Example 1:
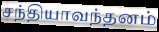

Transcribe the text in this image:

சந்தியாவந்தனம்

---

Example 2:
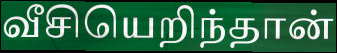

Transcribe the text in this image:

வீசியெறிந்தான்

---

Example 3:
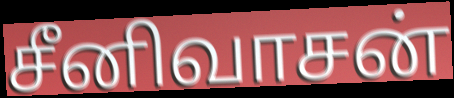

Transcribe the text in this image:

சீனிவாசன்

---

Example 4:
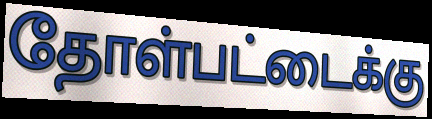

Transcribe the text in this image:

தோள்பட்டைக்கு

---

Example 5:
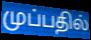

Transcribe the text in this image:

முப்பதில்